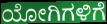
ಯೋಗಿಗಳಿಗೆ